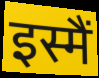
इस्मैं